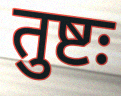
तुष्टः